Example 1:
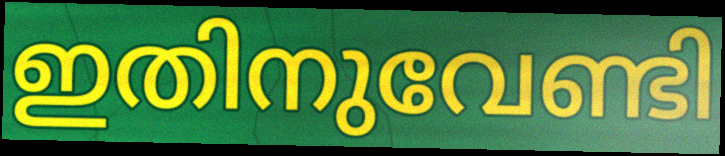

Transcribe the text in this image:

ഇതിനുവേണ്ടി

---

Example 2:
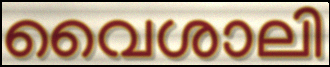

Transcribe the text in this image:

വൈശാലി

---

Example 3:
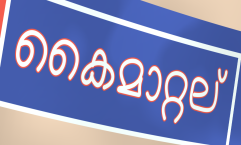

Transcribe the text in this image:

കൈമാറ്റല്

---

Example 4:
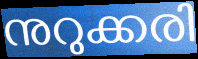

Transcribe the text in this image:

നുറുക്കരി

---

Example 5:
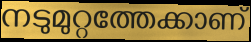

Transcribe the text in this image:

നടുമുറ്റത്തേക്കാണ്